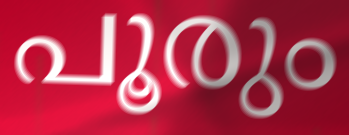
പൂരും